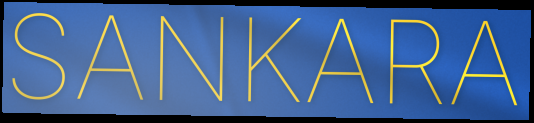
SANKARA